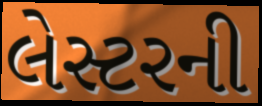
લેસ્ટરની